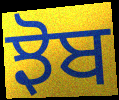
ਝੋਬ